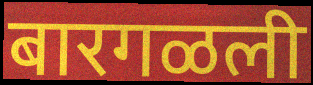
बारगळली